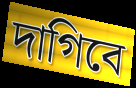
দাগিবে